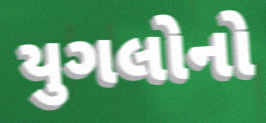
યુગલોનો